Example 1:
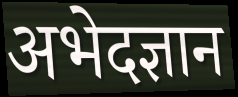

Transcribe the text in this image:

अभेदज्ञान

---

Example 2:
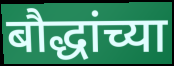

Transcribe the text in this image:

बौद्धांच्या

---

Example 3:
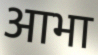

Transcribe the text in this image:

आभा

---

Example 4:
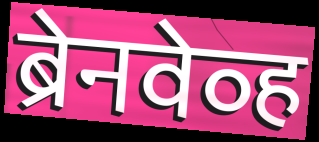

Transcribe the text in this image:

ब्रेनवेव्ह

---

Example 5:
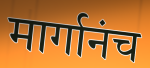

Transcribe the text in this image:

मार्गानंच